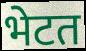
भेटत